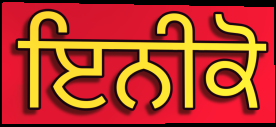
ਇਨੀਕੋ